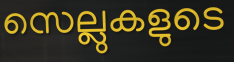
സെല്ലുകളുടെ